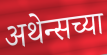
अथेन्सच्या